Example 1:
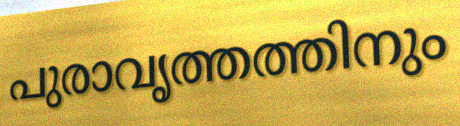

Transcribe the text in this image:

പുരാവൃത്തത്തിനും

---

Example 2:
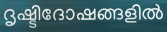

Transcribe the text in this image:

ദൃഷ്ടിദോഷങ്ങളിൽ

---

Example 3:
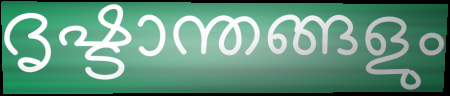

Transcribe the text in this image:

ദൃഷ്ടാന്തങ്ങളും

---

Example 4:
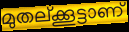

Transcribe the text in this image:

മുതല്ക്കൂട്ടാണ്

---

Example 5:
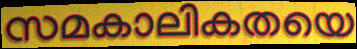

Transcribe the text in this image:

സമകാലികതയെ